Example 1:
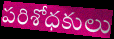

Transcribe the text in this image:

పరిశోధకులు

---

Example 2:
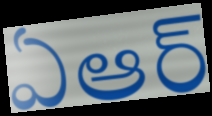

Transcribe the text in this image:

ఏఆర్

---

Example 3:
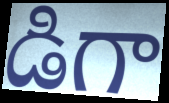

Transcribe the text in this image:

డిగా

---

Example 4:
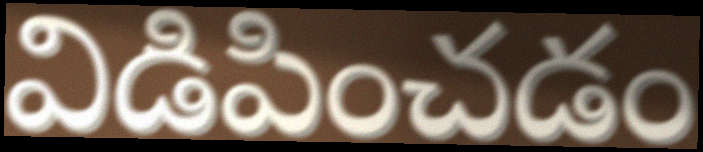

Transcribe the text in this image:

విడిపించడం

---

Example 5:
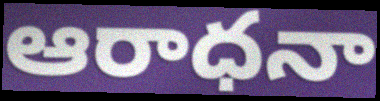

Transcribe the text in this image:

ఆరాధనా